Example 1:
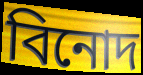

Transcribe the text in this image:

বিনোদ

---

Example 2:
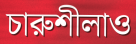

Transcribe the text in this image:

চারুশীলাও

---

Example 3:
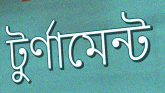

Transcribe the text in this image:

টুর্ণামেন্ট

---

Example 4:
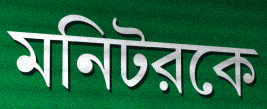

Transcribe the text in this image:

মনিটরকে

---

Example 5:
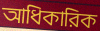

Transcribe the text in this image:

আধিকারিক